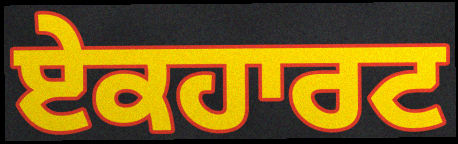
ਏਕਹਾਰਟ